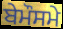
ਬੇਮੌਸਮੇ